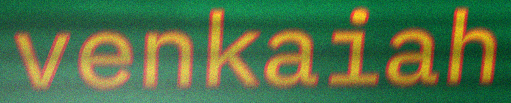
venkaiah